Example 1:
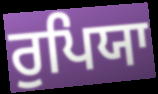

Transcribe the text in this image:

ਰੁਪਿਯਾ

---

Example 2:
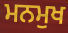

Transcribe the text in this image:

ਮਨਮੁਖ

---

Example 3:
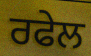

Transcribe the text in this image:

ਰਫੇਲ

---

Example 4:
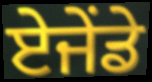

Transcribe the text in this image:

ਏਜੇਂਡੇ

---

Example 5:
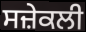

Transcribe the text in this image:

ਸਜ਼ੇਕਲੀ